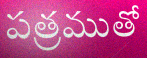
పత్రముతో